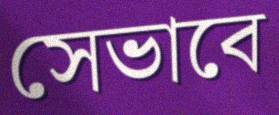
সেভাবে